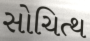
સોચિત્થ